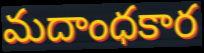
మదాంధకార